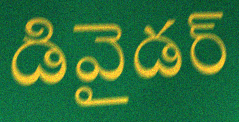
డివైడర్